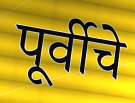
पूर्वीचे